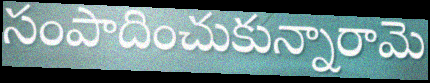
సంపాదించుకున్నారామె